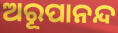
ଅରୂପାନନ୍ଦ